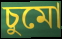
চুমো